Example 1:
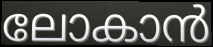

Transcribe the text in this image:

ലോകാൻ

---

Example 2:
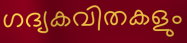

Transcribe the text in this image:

ഗദ്യകവിതകളും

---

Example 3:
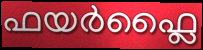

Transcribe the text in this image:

ഫയർഫ്ലൈ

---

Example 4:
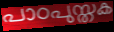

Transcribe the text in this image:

പാഠപുസ്തക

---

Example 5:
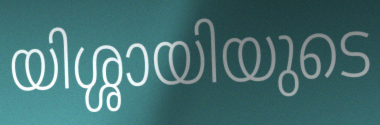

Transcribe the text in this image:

യിശ്ശായിയുടെ